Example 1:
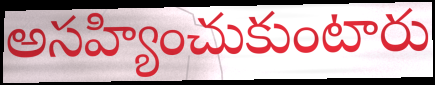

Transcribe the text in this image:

అసహ్యించుకుంటారు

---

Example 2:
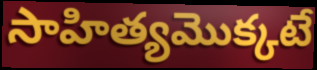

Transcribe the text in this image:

సాహిత్యమొక్కటే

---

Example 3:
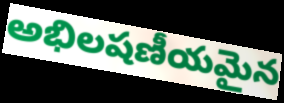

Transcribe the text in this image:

అభిలషణీయమైన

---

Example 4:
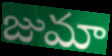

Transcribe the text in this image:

జుమా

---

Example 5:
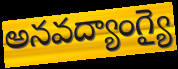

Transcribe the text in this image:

అనవద్యాంగ్యై